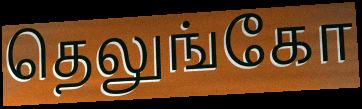
தெலுங்கோ